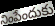
నింపేందుకు